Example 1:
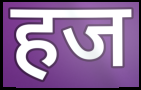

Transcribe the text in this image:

हज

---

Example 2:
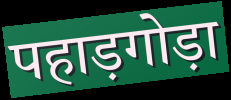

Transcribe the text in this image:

पहाड़गोड़ा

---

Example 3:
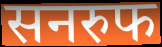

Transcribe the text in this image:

सनरुफ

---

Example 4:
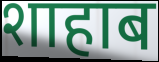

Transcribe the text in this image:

शाहाब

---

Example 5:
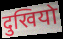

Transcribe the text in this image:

दुखियो